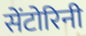
सेंटोरिनी